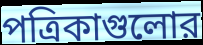
পত্রিকাগুলোর